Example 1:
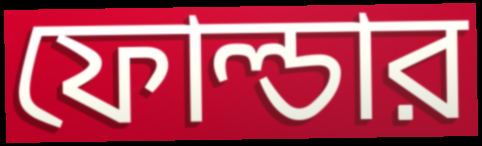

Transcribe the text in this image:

ফোল্ডার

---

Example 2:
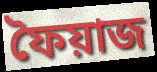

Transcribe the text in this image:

ফৈয়াজ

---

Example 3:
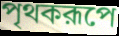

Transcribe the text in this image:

পৃথকরূপে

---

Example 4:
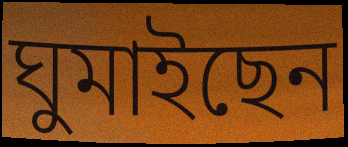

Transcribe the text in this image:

ঘুমাইছেন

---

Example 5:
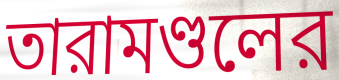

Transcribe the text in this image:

তারামণ্ডলের